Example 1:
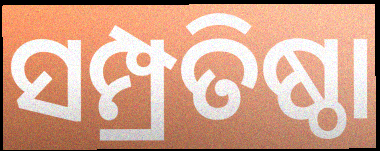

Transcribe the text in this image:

ସମ୍ପ୍ରତିଷ୍ଠା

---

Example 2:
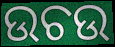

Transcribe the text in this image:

ଉଚଉ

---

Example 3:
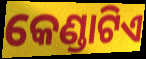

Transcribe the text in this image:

କେଣ୍ଡାଟିଏ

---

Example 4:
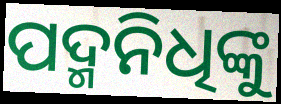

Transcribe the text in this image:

ପଦ୍ମନିଧିଙ୍କୁ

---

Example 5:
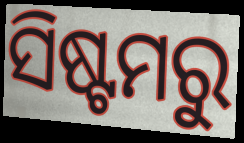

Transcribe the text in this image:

ସିଷ୍ଟମରୁ